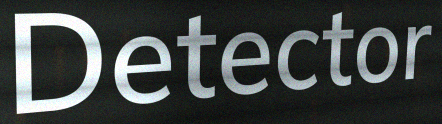
Detector